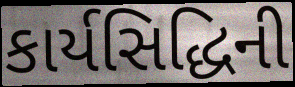
કાર્યસિદ્ધિની